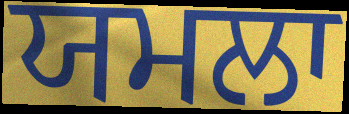
ਯਮਲਾ